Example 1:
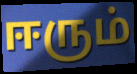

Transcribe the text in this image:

ஈரும்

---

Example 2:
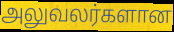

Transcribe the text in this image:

அலுவலர்களான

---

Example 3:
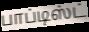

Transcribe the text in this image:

பாப்டிஸ்ட்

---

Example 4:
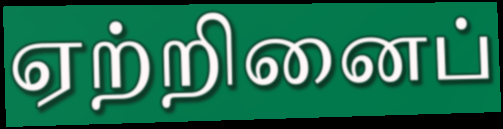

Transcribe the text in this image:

ஏற்றினைப்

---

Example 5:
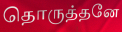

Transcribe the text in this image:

தொருத்தனே